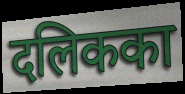
दलिकका